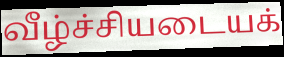
வீழ்ச்சியடையக்